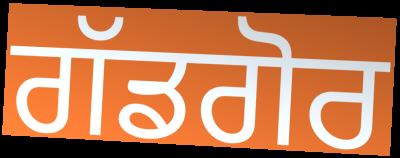
ਗੱਡਗੋਰ